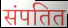
संपतित